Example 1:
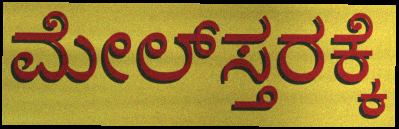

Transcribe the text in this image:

ಮೇಲ್‌ಸ್ತರಕ್ಕೆ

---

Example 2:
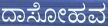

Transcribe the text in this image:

ದಾಸೋಹವ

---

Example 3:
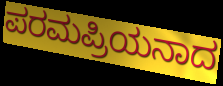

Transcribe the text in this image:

ಪರಮಪ್ರಿಯನಾದ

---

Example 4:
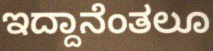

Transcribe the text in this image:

ಇದ್ದಾನೆಂತಲೂ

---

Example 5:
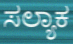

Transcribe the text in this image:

ಸಲ್ಯಾಕ